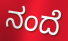
ನಂದೆ